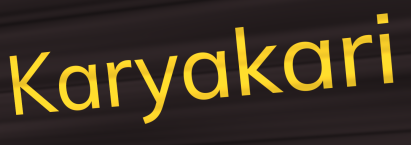
Karyakari